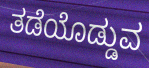
ತಡೆಯೊಡ್ಡುವ